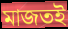
মাজতই